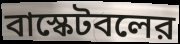
বাস্কেটবলের